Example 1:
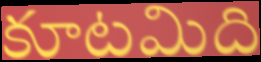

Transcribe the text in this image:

కూటమిది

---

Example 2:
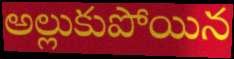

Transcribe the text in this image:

అల్లుకుపోయిన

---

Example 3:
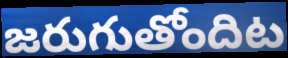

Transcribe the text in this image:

జరుగుతోందిట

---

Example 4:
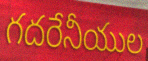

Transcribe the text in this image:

గదరేనీయుల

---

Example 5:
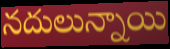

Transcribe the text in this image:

నదులున్నాయి